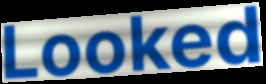
Looked